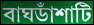
বাঘডাঁশাটি